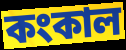
কংকাল